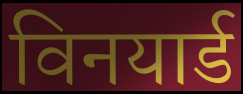
विनयार्ड